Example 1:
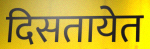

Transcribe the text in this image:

दिसतायेत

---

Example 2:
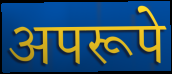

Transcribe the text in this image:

अपरूपे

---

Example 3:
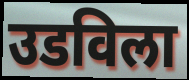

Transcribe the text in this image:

उडविला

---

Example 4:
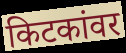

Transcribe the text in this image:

किटकांवर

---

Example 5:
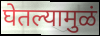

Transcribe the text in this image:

घेतल्यामुळं